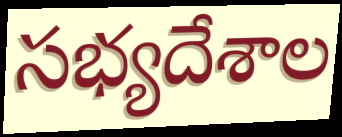
సభ్యదేశాల